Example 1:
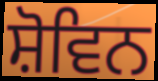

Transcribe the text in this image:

ਸ਼ੋਵਿਨ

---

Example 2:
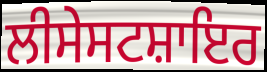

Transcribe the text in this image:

ਲੀਸੇਸਟਸ਼ਾਇਰ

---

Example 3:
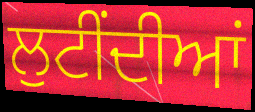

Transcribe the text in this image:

ਲੁਟੀਂਦੀਆਂ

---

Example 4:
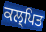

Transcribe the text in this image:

ਕਲ੍ਪਿਤ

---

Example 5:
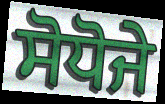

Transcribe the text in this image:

ਸੋਧੋਜੇ